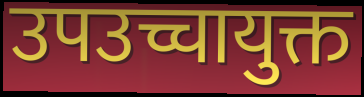
उपउच्चायुक्त